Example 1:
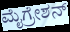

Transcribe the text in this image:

ಮೈಗ್ರೇಶನ್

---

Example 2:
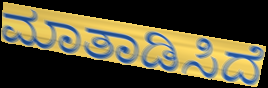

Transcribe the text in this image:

ಮಾತಾಡಿಸಿದೆ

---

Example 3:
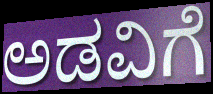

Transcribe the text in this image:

ಅಡವಿಗೆ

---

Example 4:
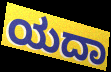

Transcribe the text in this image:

ಯದಾ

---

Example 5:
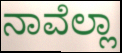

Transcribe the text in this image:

ನಾವೆಲ್ಲಾ